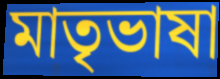
মাতৃভাষা